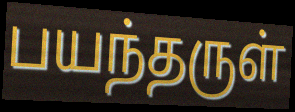
பயந்தருள்